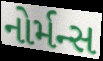
નોર્મન્સ